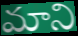
మాని